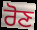
ਰੋਣ